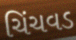
ચિંચવડ